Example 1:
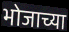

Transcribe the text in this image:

भोजाच्या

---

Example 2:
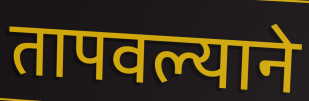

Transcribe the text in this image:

तापवल्याने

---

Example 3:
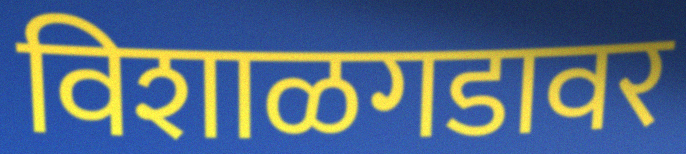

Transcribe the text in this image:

विशाळगडावर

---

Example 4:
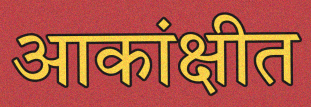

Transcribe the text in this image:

आकांक्षीत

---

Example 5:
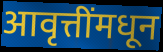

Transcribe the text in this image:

आवृत्तींमधून